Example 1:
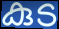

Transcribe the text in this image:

കുട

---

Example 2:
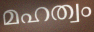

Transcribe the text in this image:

മഹത്വം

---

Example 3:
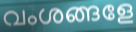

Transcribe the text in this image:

വംശങ്ങളേ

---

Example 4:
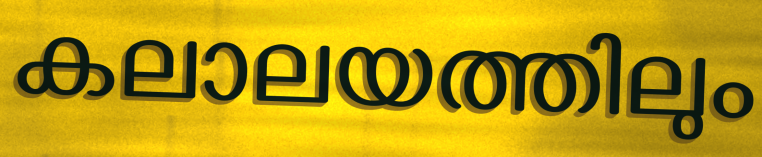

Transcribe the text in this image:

കലാലയത്തിലും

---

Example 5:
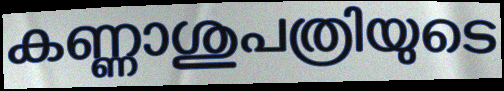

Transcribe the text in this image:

കണ്ണാശുപത്രിയുടെ